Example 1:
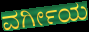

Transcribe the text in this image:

ವರ್ಗೀಯ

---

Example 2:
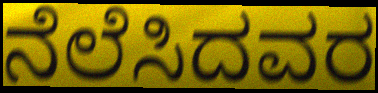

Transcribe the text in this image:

ನೆಲೆಸಿದವರ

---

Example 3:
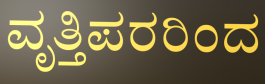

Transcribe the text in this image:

ವೃತ್ತಿಪರರಿಂದ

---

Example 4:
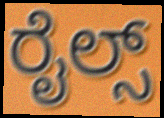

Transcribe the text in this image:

ರೈಲ್ಸ್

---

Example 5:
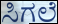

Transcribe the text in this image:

ಸಿಗಲೆ